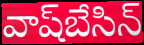
వాష్‌బేసిన్